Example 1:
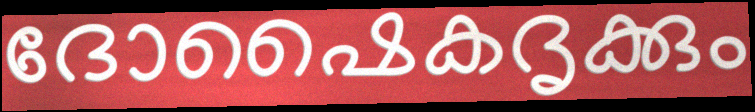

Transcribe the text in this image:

ദോഷൈകദൃക്കും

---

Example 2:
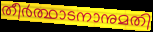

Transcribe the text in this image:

തീർത്ഥാടനാനുമതി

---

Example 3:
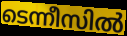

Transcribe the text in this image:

ടെന്നീസിൽ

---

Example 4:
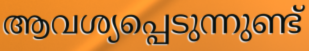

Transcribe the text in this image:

ആവശ്യപ്പെടുന്നുണ്ട്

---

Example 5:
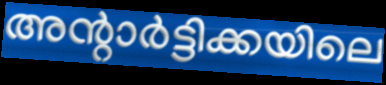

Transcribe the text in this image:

അന്റാർട്ടിക്കയിലെ